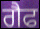
ਗੈਫ